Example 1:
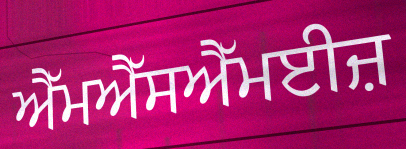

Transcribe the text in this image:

ਐੱਮਐੱਸਐੱਮਈਜ਼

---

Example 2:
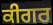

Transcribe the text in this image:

ਕੀਗਰ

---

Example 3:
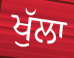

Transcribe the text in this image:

ਖੁੱਲਾ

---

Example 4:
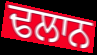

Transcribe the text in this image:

ਢਲਾਨ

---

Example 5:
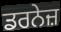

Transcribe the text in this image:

ਡਰਨੇਜ਼